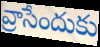
వ్రాసేందుకు